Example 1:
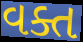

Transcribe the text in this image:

વક્ત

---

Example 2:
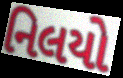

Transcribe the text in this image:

નિલયો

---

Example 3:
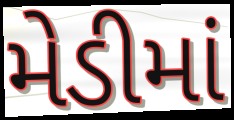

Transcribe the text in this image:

મેડીમાં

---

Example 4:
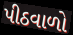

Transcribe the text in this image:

પીઠવાળો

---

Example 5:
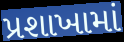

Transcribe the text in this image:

પ્રશાખામાં